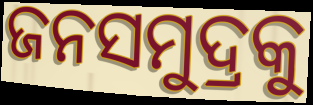
ଜନସମୁଦ୍ରକୁ